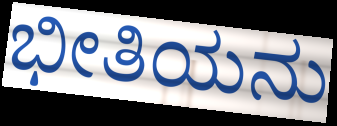
ಭೀತಿಯನು